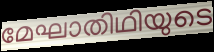
മേഘാതിഥിയുടെ